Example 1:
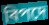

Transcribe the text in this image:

বিপদে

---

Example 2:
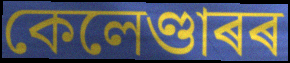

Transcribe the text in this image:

কেলেণ্ডাৰৰ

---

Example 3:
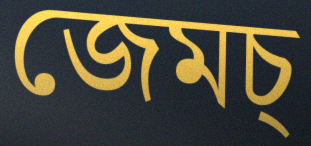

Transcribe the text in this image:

জেমচ্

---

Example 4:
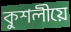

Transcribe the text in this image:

কুশলীয়ে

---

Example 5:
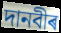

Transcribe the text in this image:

দানবীৰ